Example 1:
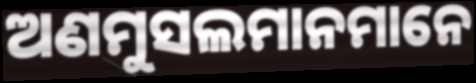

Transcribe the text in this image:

ଅଣମୁସଲମାନମାନେ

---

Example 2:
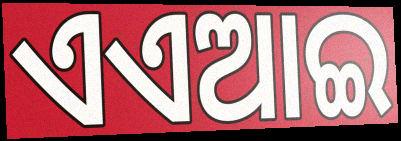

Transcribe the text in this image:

ଏଏଆଇ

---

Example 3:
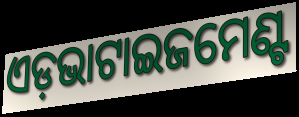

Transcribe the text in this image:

ଏଡ଼ଭାଟାଇଜମେଣ୍ଟ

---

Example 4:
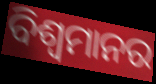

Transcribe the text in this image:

ବିଶ୍ୱମାନର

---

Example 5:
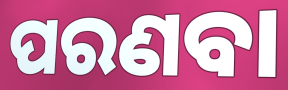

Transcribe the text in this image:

ପରଣବା